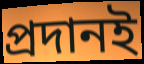
প্রদানই